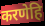
करणेहि